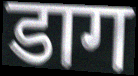
डाग